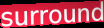
surround